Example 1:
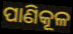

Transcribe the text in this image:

ପାଣିକୂଳ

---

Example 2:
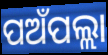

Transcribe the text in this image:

ପଅଁପଲ୍ଲା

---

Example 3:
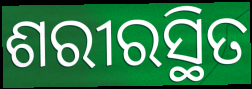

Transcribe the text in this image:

ଶରୀରସ୍ଥିତ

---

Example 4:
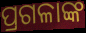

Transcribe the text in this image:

ପ୍ରଗଳାଙ୍କ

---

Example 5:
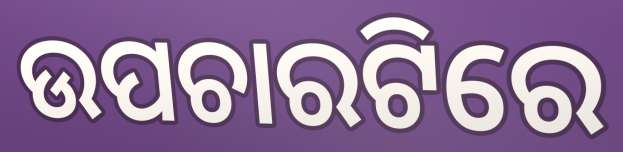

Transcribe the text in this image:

ଉପଚାରଟିରେ